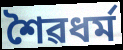
শৈৱধৰ্ম